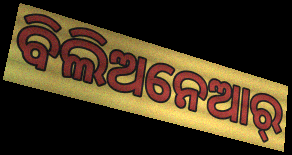
ବିଲିଅନେଆର୍